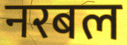
नरबल